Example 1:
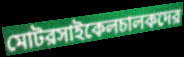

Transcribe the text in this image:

মোটরসাইকেলচালকদের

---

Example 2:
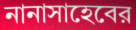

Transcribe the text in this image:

নানাসাহেবের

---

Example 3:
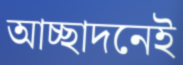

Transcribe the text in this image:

আচ্ছাদনেই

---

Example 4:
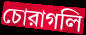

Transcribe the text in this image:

চোরাগলি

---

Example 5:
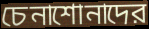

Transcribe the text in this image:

চেনাশোনাদের